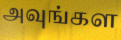
அவுங்கள